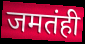
जमतंही